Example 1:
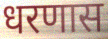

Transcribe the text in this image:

धरणास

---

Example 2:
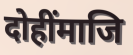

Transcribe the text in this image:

दोहींमाजि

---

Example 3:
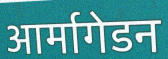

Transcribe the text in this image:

आर्मागेडन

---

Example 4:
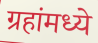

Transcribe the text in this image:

ग्रहांमध्ये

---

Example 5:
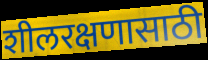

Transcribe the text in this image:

शीलरक्षणासाठी